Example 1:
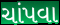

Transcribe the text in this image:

ચાંપવા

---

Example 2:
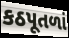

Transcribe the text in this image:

કઠપૂતળાં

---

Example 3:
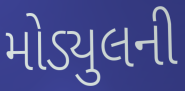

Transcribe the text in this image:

મોડ્યુલની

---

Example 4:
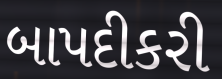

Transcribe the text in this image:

બાપદીકરી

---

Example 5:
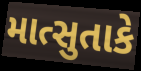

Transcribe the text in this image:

માત્સુતાકે